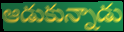
ఆడుకున్నాడు